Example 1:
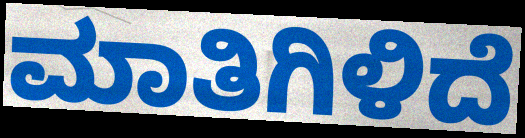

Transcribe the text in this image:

ಮಾತಿಗಿಳಿದೆ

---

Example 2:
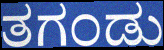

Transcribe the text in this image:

ತಗಂಡು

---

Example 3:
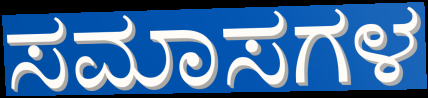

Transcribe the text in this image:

ಸಮಾಸಗಳ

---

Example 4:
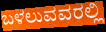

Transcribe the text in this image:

ಬಳಲುವವರಲ್ಲಿ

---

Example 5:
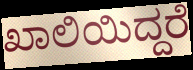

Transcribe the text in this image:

ಖಾಲಿಯಿದ್ದರೆ